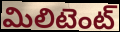
మిలిటెంట్